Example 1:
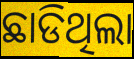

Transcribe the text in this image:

ଛାଡିଥିଲା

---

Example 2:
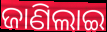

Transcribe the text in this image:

ଜାଣିଲାଇ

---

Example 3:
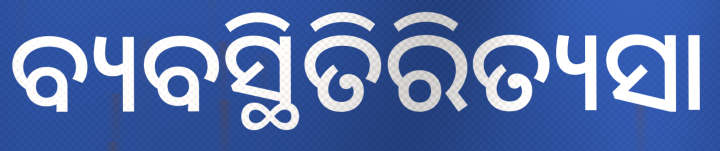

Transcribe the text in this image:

ବ୍ୟବସ୍ଥିତିରିତ୍ୟସା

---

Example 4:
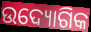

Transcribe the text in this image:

ଉଦ୍ୟୋଗିକ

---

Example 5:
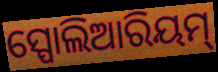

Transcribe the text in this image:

ସ୍ପୋଲିଆରିୟମ୍